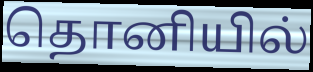
தொனியில்